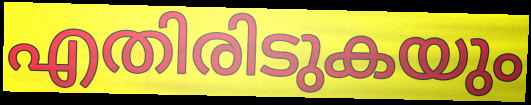
എതിരിടുകയും